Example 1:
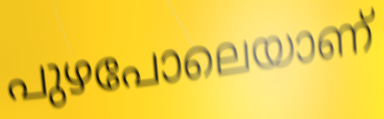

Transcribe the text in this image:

പുഴപോലെയാണ്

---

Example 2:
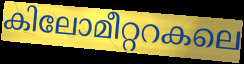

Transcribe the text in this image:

കിലോമീറ്ററകലെ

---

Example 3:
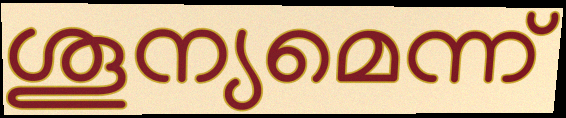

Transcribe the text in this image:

ശൂന്യമെന്ന്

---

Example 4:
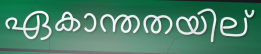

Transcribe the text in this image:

ഏകാന്തതയില്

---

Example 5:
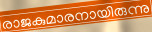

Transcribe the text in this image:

രാജകുമാരനായിരുന്നു